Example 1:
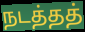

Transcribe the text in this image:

நடத்தத்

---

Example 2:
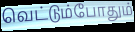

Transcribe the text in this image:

வெட்டும்போதும்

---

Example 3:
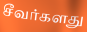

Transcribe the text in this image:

சீவர்களது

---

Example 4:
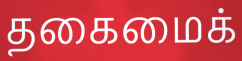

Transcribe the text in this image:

தகைமைக்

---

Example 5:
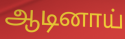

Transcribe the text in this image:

ஆடினாய்